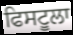
ਫਿਸਟੂਲਾ